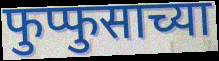
फुप्फुसाच्या